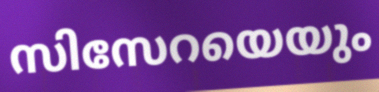
സിസേറയെയും